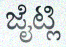
ಜೈಟ್ಲಿ